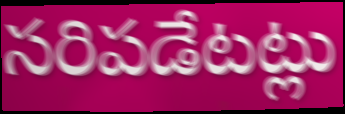
సరిపడేటట్లు